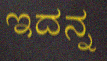
ಇದನ್ನ